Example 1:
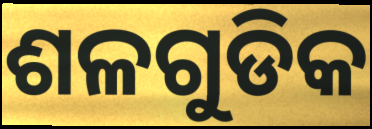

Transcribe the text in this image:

ଶଳଗୁଡିକ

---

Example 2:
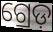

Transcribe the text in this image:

ଗ୍ରେଡ଼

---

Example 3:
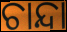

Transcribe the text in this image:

ଚାନ୍ଦା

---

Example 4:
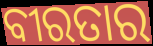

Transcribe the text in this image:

ବୀରତାର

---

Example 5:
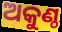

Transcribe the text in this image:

ଅକୁଣ୍ଠ